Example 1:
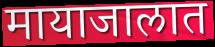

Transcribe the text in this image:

मायाजालात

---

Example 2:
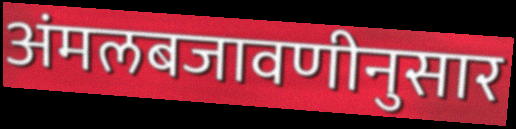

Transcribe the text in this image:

अंमलबजावणीनुसार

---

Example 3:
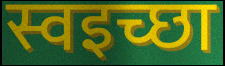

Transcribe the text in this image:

स्वइच्छा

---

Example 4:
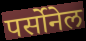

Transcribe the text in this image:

पर्सोनेल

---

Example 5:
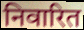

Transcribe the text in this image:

निवारित